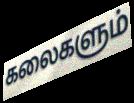
கலைகளும்